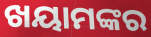
ଖୟାମଙ୍କର